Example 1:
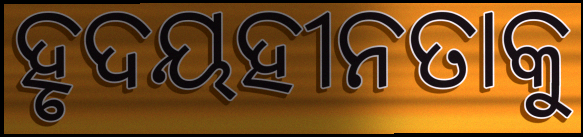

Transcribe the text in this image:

ହୃଦୟହୀନତାକୁ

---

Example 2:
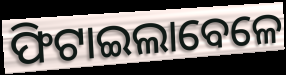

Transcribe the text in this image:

ଫିଟାଇଲାବେଳେ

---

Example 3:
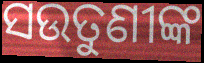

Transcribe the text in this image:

ସଉତୁଣୀଙ୍କ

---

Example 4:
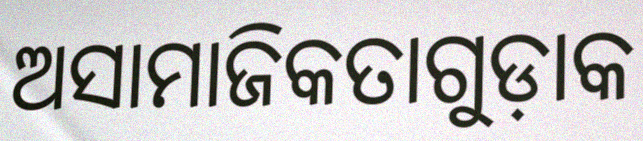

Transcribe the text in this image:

ଅସାମାଜିକତାଗୁଡ଼ାକ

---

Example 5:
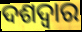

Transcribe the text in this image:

ଦଶଦ୍ୱାର